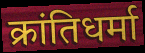
क्रांतिधर्मा